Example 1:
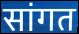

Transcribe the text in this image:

सांगत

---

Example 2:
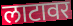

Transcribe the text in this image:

लाटावर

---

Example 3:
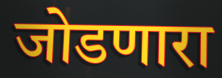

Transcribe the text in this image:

जोडणारा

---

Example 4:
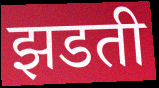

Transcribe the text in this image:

झडती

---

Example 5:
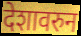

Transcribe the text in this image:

देशावरुन